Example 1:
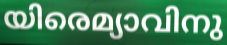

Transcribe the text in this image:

യിരെമ്യാവിനു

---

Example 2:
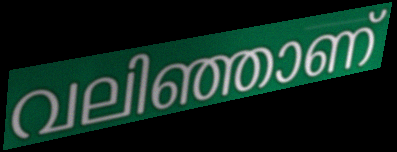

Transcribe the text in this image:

വലിഞ്ഞാണ്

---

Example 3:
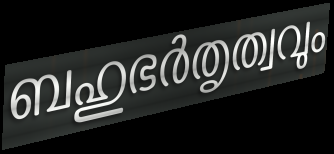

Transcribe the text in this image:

ബഹുഭർതൃത്വവും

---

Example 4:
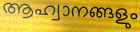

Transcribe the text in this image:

ആഹ്വാനങ്ങളും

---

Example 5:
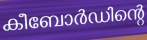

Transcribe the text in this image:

കീബോർഡിന്റെ